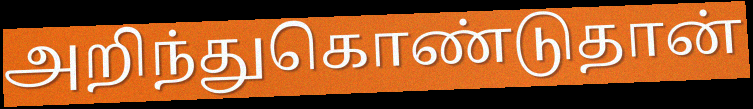
அறிந்துகொண்டுதான்